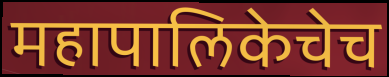
महापालिकेचेच